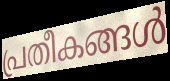
പ്രതീകങ്ങൾ